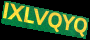
IXLVQYQ